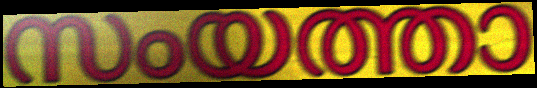
സംയത്താ